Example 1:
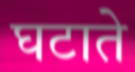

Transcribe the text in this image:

घटाते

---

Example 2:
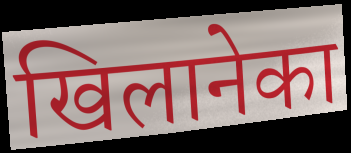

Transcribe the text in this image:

खिलानेका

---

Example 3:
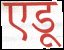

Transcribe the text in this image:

एडू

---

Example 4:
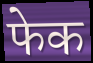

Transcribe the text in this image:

फेक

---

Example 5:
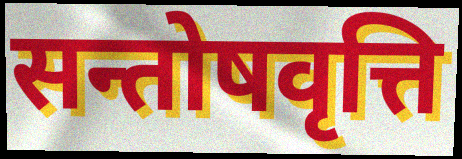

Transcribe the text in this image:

सन्तोषवृत्ति